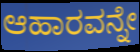
ಆಹಾರವನ್ನೇ